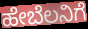
ಹೇಬೆಲನಿಗೆ